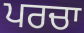
ਪਰਚਾ